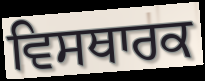
ਵਿਸਥਾਰਕ